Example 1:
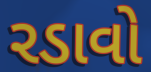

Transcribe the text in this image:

રડાવો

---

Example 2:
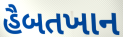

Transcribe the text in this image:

હૈબતખાન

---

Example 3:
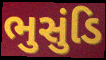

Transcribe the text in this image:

ભુસુંડિ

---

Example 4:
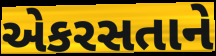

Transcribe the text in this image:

એકરસતાને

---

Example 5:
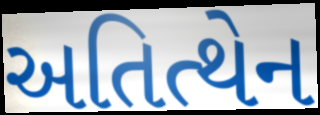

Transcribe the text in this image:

અતિત્થેન